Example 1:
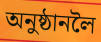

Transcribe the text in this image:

অনুষ্ঠানলৈ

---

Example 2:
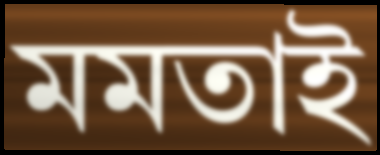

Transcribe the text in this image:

মমতাই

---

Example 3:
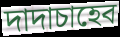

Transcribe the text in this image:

দাদাচাহেব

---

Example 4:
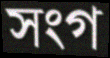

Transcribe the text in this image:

সংগ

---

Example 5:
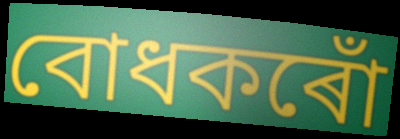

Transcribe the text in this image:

বোধকৰোঁ